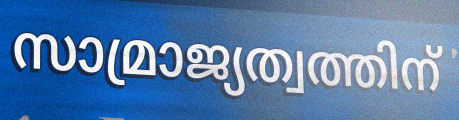
സാമ്രാജ്യത്വത്തിന്